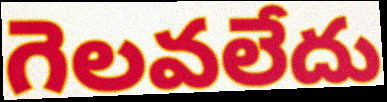
గెలవలేదు